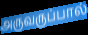
அருவருப்பால்